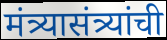
मंत्र्यासंत्र्यांची